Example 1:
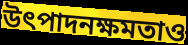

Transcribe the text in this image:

উৎপাদনক্ষমতাও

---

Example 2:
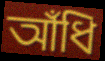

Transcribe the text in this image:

আঁধি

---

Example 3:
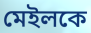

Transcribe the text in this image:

মেইলকে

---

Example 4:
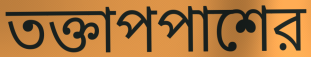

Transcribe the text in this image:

তক্তাপপাশের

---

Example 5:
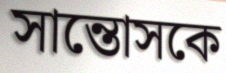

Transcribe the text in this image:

সান্তোসকে